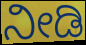
ನೀಡಿ